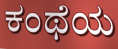
ಕಂಥೆಯ